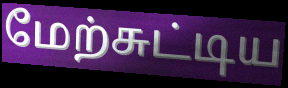
மேற்சுட்டிய